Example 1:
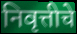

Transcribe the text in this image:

निवृत्तीचे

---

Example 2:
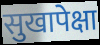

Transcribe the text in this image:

सुखापेक्षा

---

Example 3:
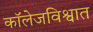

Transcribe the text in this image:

कॉलेजविश्वात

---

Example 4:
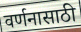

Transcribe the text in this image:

वर्णनासाठी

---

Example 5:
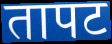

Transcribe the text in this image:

तापट